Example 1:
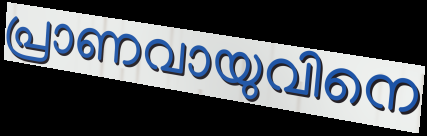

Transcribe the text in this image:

പ്രാണവായുവിനെ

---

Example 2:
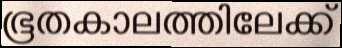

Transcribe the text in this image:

ഭൂതകാലത്തിലേക്ക്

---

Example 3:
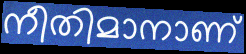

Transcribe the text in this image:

നീതിമാനാണ്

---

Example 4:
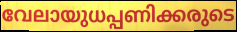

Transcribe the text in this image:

വേലായുധപ്പണിക്കരുടെ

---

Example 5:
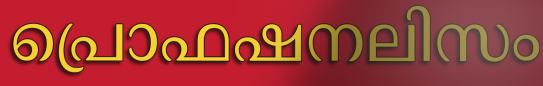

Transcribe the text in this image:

പ്രൊഫഷനലിസം